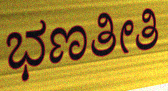
ಭಣತೀತಿ